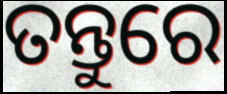
ତନ୍ତୁରେ